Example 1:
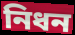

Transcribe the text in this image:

নিধন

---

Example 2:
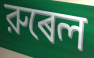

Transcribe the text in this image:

ৰুৰেল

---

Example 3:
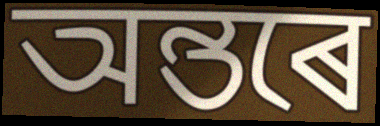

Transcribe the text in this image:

অন্তৰে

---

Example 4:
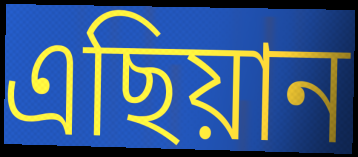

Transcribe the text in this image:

এছিয়ান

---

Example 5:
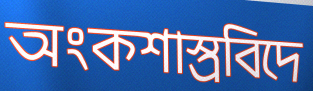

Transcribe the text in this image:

অংকশাস্ত্ৰবিদে